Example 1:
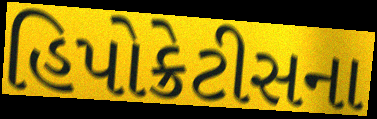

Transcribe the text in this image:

હિપોક્રેટીસના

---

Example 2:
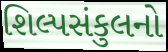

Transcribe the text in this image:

શિલ્પસંકુલનો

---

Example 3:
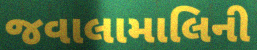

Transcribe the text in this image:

જવાલામાલિની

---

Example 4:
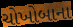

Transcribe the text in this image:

ચોખોબાના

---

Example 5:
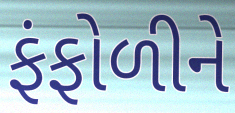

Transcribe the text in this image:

ફંફોળીને